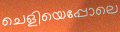
ചെളിയെപ്പോലെ